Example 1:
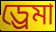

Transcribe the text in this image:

ড্রেমা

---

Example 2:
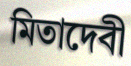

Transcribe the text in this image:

মিতাদেবী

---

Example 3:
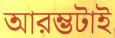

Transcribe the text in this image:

আরম্ভটাই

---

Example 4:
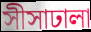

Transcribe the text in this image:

সীসাঢালা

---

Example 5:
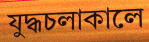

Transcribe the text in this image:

যুদ্ধচলাকালে